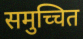
समुच्चित